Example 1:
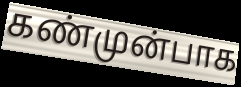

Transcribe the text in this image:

கண்முன்பாக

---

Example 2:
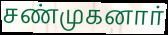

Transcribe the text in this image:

சண்முகனார்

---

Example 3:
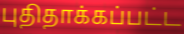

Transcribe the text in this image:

புதிதாக்கப்பட்ட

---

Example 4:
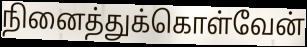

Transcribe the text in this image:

நினைத்துக்கொள்வேன்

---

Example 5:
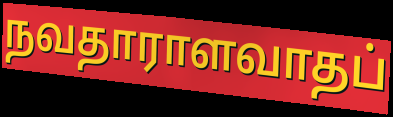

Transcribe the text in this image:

நவதாராளவாதப்